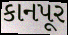
કાનપૂર